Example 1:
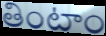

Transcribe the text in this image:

తింటాం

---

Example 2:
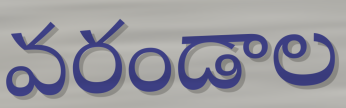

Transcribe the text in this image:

వరండాల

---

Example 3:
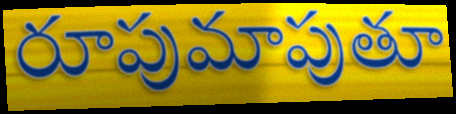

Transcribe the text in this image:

రూపుమాపుతూ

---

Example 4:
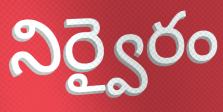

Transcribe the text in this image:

నిర్వైరం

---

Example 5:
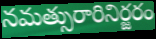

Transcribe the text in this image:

నమత్సురారినిర్జరం